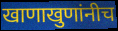
खाणाखुणांनीच